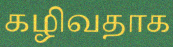
கழிவதாக